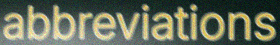
abbreviations